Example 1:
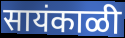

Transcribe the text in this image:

सायंकाळी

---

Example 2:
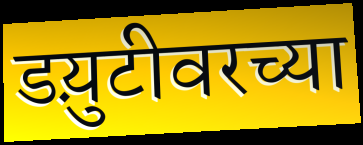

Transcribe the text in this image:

डय़ुटीवरच्या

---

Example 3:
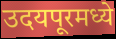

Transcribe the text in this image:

उदयपूरमध्ये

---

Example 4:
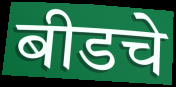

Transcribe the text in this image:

बीडचे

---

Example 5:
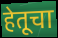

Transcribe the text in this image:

हेतूचा